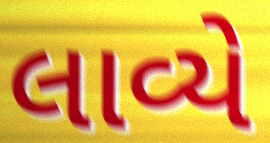
લાવ્યે